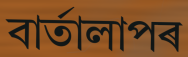
বাৰ্তালাপৰ